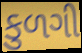
કુળગી